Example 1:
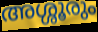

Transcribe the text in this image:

അശ്ശൂരും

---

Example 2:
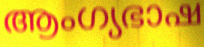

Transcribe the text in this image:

ആംഗ്യഭാഷ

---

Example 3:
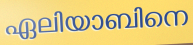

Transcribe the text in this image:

ഏലിയാബിനെ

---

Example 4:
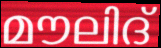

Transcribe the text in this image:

മൗലിദ്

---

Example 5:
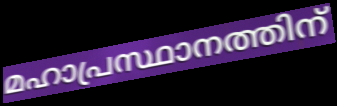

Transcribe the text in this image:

മഹാപ്രസ്ഥാനത്തിന്